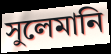
সুলেমানি